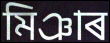
মিঞাৰ